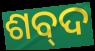
ଶବ୍‌ଦ